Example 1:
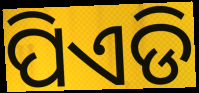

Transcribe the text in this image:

ପିଏଡି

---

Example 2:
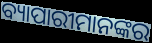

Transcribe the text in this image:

ବ୍ୟାପାରୀମାନଙ୍କର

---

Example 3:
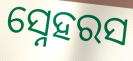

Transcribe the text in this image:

ସ୍ନେହରସ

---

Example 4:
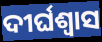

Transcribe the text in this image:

ଦୀର୍ଘଶ୍ଵାସ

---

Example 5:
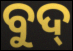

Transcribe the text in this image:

ବୁଦ୍